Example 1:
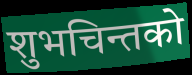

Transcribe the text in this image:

शुभचिन्तको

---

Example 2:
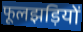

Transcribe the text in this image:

फूलझड़ियों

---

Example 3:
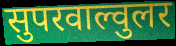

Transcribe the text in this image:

सुपरवाल्वुलर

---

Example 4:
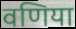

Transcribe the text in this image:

वणिया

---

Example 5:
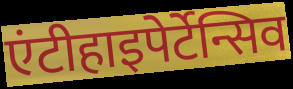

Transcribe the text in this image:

एंटीहाइपेर्टेन्सिव